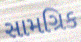
સામગ્રિક